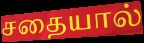
சதையால்